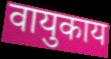
वायुकाय